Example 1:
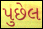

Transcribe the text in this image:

પુછેલ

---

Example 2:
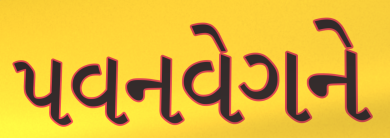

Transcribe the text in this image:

પવનવેગને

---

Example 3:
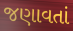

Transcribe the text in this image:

જણાવતાં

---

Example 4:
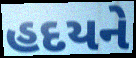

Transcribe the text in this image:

હદયને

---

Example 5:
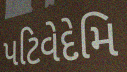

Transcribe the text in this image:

પટિવેદેમિ